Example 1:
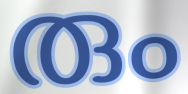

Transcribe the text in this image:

രും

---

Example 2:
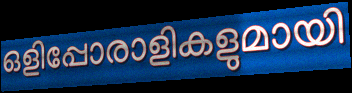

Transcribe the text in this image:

ഒളിപ്പോരാളികളുമായി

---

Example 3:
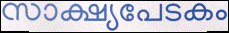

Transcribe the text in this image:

സാക്ഷ്യപേടകം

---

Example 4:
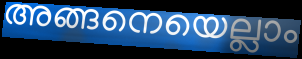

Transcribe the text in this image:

അങ്ങനെയെല്ലാം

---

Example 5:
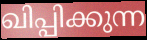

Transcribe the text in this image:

ഖിപ്പിക്കുന്ന